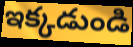
ఇక్కడుండి